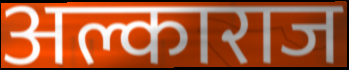
अल्काराज